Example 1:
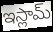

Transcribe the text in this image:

ఇస్లామ్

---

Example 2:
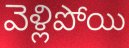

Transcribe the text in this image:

వెళ్లిపోయి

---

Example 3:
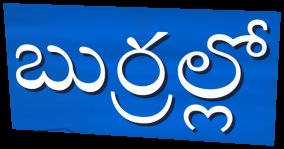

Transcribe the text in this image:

బుర్రల్లో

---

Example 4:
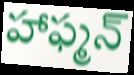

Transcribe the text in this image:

హాఫ్మన్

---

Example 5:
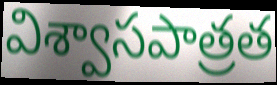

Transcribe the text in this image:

విశ్వాసపాత్రత